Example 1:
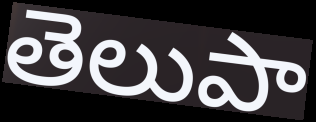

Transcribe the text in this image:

తెలుపా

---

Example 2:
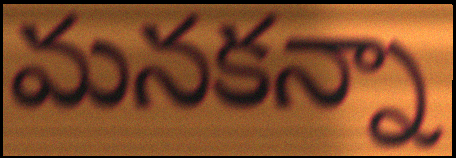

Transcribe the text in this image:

మనకన్నా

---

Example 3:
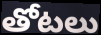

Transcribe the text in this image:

తోటలు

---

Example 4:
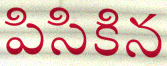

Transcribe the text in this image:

పిసికిన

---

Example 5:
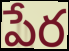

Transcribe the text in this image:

పేర